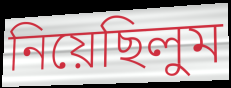
নিয়েছিলুম